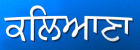
ਕਲਿਆਣਾ